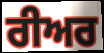
ਰੀਅਰ